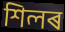
শিলৰ